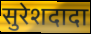
सुरेशदादा